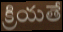
క్రియతే